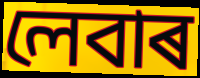
লেবাৰ